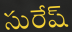
సురేష్